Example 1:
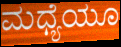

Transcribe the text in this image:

ಮಧ್ಯೆಯೂ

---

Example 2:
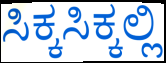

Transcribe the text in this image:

ಸಿಕ್ಕಸಿಕ್ಕಲ್ಲಿ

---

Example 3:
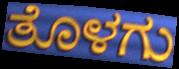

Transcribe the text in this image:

ತೊಳಗು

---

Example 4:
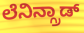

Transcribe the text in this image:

ಲೆನಿನ್ಗ್ರಾಡ್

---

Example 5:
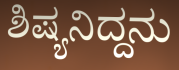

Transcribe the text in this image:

ಶಿಷ್ಯನಿದ್ದನು